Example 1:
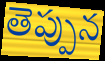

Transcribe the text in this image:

తెప్పున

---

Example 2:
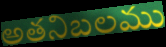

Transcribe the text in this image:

అతనిబలము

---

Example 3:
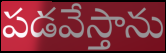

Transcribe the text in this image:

పడవేస్తాను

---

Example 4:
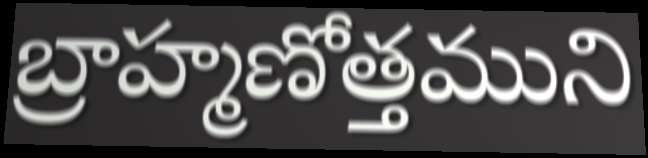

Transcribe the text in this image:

బ్రాహ్మణోత్తముని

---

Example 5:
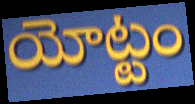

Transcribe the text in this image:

యోట్టం